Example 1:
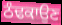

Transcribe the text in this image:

ਠੰਢਕਾਉਣ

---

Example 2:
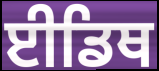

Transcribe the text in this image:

ਈਡਿਥ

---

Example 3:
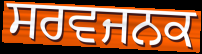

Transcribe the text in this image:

ਸਰਵਜਨਕ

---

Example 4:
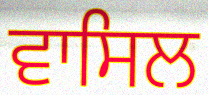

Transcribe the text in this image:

ਵਾਸਿਲ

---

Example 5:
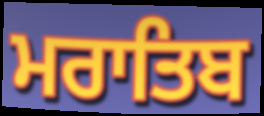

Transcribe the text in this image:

ਮਰਾਤਿਬ